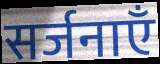
सर्जनाएँ